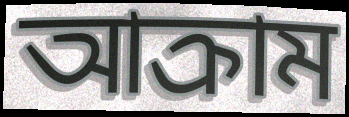
আক্রাম